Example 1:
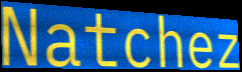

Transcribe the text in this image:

Natchez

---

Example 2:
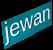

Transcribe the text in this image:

jewan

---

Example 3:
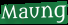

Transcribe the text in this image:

Maung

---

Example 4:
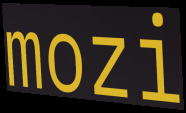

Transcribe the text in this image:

mozi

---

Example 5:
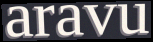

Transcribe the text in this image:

aravu